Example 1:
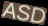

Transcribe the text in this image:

ASD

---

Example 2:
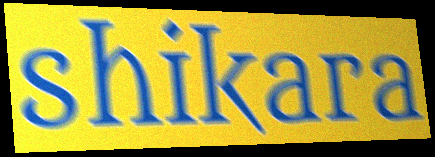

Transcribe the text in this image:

shikara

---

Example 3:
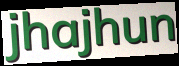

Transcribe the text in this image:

jhajhun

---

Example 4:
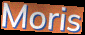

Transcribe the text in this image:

Moris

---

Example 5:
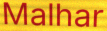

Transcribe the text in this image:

Malhar